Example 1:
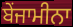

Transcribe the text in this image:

ਬੇਂਜਾਮੀਨਾ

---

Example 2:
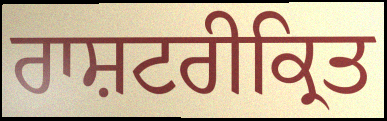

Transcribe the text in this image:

ਰਾਸ਼ਟਰੀਕ੍ਰਿਤ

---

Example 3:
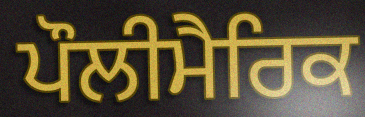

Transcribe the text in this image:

ਪੌਲੀਮੈਰਿਕ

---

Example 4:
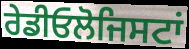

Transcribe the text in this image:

ਰੇਡੀਓਲੋਜਿਸਟਾਂ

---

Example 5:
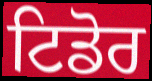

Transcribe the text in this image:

ਟਿਡੋਰ